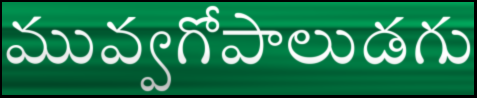
మువ్వగోపాలుడగు